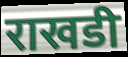
राखडी